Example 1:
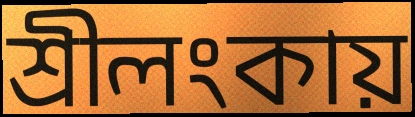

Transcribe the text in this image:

শ্রীলংকায়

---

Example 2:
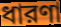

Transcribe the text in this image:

ধারণা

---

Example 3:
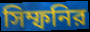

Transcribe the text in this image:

সিম্ফনির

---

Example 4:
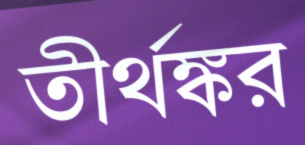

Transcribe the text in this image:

তীর্থঙ্কর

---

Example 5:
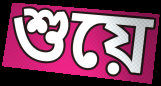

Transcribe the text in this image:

শুয়ে